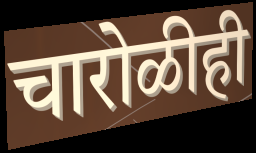
चारोळीही